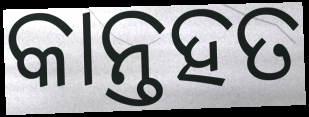
କାନ୍ତହତ